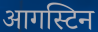
आगस्टिन